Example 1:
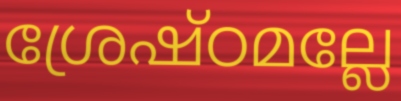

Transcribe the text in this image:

ശ്രേഷ്ഠമല്ലേ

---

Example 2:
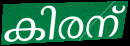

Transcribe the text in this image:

കിരന്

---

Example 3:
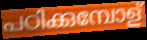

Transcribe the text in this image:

പഠിക്കുമ്പോള്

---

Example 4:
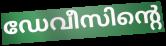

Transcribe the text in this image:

ഡേവീസിന്റെ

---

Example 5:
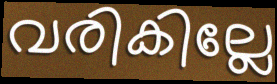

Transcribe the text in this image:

വരികില്ലേ